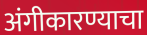
अंगीकारण्याचा